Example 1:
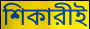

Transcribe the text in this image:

শিকারীই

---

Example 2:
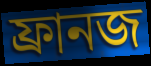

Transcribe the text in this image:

ফ্রানজ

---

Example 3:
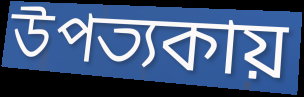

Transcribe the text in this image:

উপত্যকায়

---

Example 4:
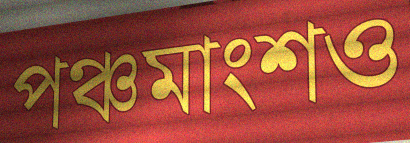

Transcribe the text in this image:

পঞ্চমাংশও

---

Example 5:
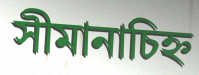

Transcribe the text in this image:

সীমানাচিহ্ন